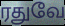
ரதுவே